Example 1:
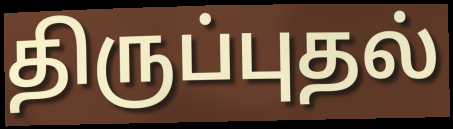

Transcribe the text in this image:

திருப்புதல்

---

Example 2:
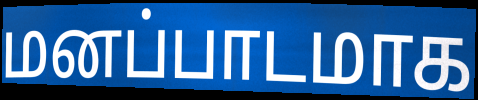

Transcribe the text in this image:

மனப்பாடமாக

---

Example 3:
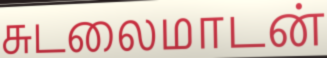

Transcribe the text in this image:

சுடலைமாடன்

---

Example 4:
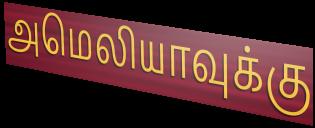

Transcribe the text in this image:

அமெலியாவுக்கு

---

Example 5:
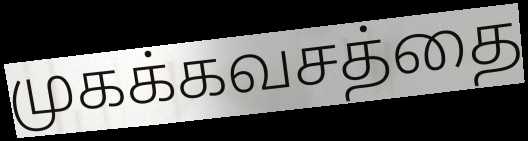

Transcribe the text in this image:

முகக்கவசத்தை